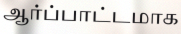
ஆர்ப்பாட்டமாக